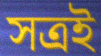
সত্ৰই